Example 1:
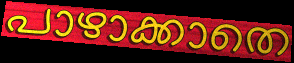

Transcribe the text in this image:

പാഴാക്കാതെ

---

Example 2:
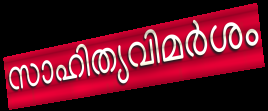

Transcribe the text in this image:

സാഹിത്യവിമർശം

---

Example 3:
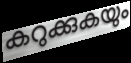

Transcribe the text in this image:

കറുക്കുകയും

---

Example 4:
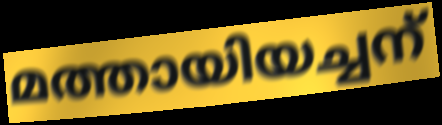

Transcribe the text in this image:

മത്തായിയച്ചന്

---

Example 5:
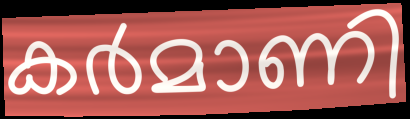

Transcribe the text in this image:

കർമാണി